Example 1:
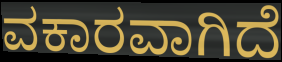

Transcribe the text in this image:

ವಕಾರವಾಗಿದೆ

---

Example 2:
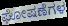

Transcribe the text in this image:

ಘೋಷಣೆಗಳ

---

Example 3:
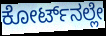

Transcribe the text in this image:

ಕೋರ್ಟ್‌ನಲ್ಲೇ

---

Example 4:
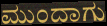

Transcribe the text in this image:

ಮುಂದಾಗು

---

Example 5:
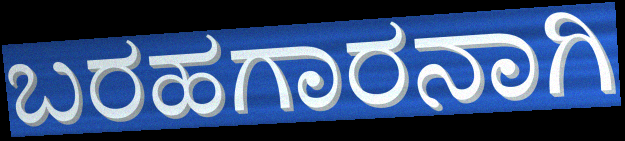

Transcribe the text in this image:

ಬರಹಗಾರನಾಗಿ